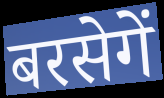
बरसेगें